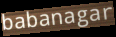
babanagar